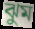
ঝুম